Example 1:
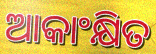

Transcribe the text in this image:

ଆକାଂକ୍ଷିତ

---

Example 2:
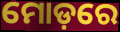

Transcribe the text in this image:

ମୋଡ଼ରେ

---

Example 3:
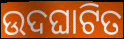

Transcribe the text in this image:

ଉଦଘାଟିତ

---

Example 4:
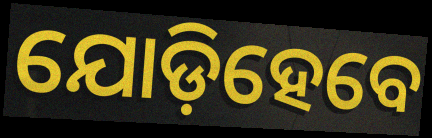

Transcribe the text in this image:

ଯୋଡ଼ିହେବେ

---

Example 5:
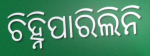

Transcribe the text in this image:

ଚିହ୍ନିପାରିଲିନି